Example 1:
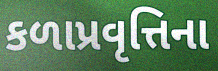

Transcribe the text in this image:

કળાપ્રવૃત્તિના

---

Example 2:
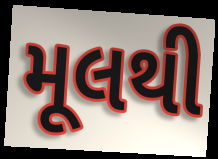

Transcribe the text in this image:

મૂલથી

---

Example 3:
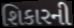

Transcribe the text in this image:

શિકારની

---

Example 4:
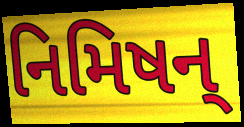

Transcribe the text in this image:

નિમિષન્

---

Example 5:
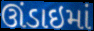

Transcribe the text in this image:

ઊંડાઇમાં